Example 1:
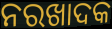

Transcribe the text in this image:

ନରଖାଦକ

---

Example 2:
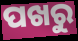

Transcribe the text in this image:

ପଖରୁ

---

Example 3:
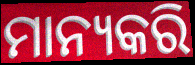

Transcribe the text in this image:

ମାନ୍ୟକରି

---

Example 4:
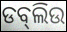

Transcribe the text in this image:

ଡବ୍‍ଲିଉ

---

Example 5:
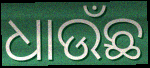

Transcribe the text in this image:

ଧାଉଁଛ